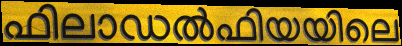
ഫിലാഡൽഫിയയിലെ